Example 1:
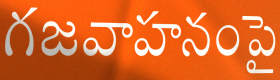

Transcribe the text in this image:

గజవాహనంపై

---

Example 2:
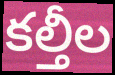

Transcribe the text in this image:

కల్తీల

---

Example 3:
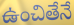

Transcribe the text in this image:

ఉంచితేనే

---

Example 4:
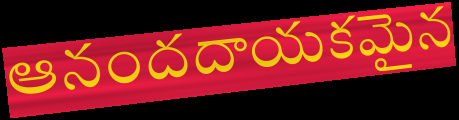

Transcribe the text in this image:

ఆనందదాయకమైన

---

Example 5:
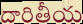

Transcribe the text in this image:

దారితీయ